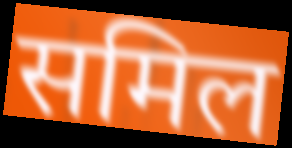
समिल